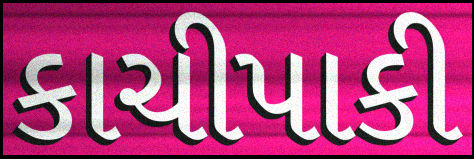
કાચીપાકી